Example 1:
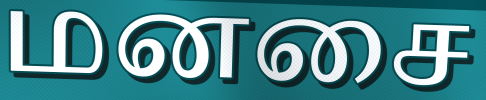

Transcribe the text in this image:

மனசை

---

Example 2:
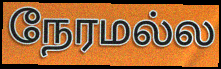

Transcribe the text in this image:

நேரமல்ல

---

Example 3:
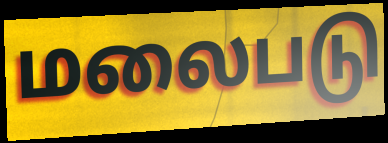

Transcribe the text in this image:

மலைபடு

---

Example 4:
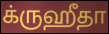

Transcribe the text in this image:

க்ருஹீதா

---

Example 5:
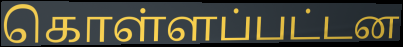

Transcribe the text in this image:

கொள்ளப்பட்டன